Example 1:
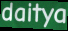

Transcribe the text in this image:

daitya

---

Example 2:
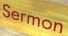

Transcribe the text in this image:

Sermon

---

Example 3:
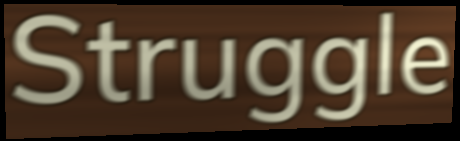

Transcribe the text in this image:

Struggle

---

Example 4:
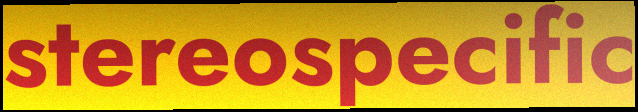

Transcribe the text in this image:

stereospecific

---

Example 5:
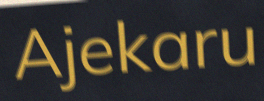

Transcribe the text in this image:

Ajekaru